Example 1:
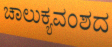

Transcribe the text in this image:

ಚಾಲುಕ್ಯವಂಶದ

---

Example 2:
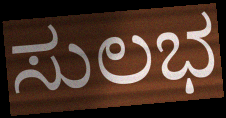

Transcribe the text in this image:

ಸುಲಭ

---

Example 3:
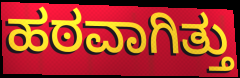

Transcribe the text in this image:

ಹಠವಾಗಿತ್ತು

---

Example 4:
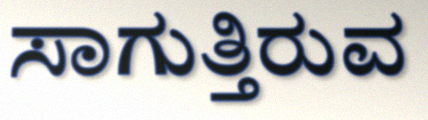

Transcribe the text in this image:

ಸಾಗುತ್ತಿರುವ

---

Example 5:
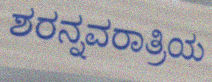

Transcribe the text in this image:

ಶರನ್ನವರಾತ್ರಿಯ